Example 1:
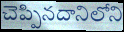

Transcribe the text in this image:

చెప్పినదానిలోని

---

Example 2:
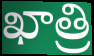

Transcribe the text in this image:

ఖాత్రి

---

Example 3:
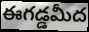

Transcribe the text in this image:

ఈగడ్డమీద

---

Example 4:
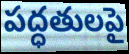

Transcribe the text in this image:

పద్ధతులపై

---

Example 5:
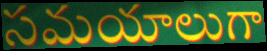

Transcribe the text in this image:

సమయాలుగా